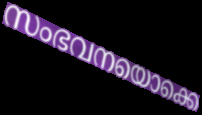
സംഭവനയൊക്കെ